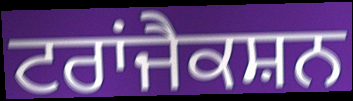
ਟਰਾਂਜੈਕਸ਼ਨ